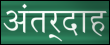
अंतर्दाह